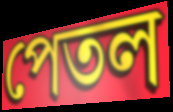
পেতল